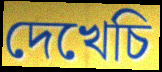
দেখেচি